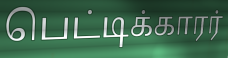
பெட்டிக்காரர்